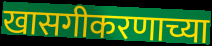
खासगीकरणाच्या